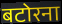
बटोरना